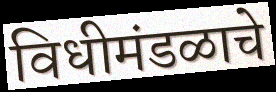
विधीमंडळाचे